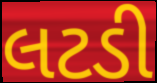
લટડી